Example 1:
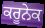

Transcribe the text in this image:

ਕਰੂਨੇਕ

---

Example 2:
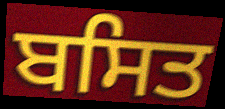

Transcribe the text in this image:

ਬਸਿਤ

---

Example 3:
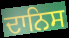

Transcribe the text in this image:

ਦਾਨਿਸ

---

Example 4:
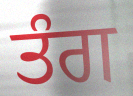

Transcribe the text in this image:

ਤੰਗ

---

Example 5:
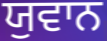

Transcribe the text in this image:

ਯੁਵਾਨ